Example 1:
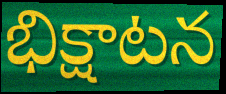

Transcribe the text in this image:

భిక్షాటన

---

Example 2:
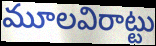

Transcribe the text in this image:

మూలవిరాట్టు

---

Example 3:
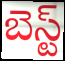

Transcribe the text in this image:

బెస్ట్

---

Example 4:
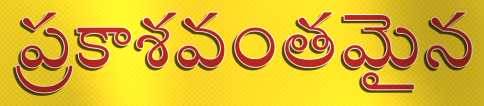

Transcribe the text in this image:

ప్రకాశవంతమైన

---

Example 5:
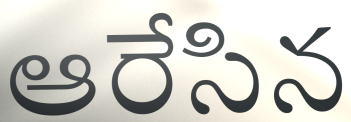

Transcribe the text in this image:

ఆరేసిన